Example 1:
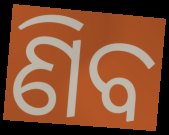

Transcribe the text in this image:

ଣିବ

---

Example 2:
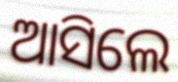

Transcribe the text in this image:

ଆସିଲେ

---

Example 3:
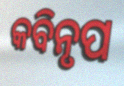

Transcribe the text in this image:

କବିନୃପ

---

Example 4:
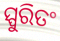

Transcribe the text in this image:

ସ୍ପୁରିତଂ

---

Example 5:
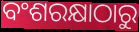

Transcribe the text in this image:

ବଂଶରକ୍ଷାଠାରୁ